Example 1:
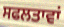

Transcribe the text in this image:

ਸਫਲਤਾਵਾਂ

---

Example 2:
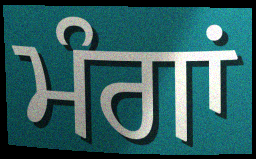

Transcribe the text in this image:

ਮੰਗਾਂ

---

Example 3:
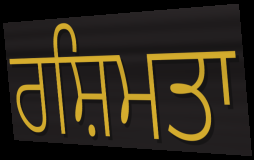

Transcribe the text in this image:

ਰਸ਼ਿਮਤਾ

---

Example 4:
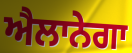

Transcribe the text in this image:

ਐਲਾਨੇਗਾ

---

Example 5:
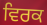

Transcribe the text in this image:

ਵਿਰਕ